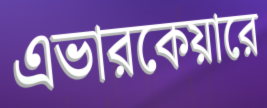
এভারকেয়ারে